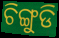
ଚିଙ୍ଗୁଡି